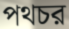
পথচর